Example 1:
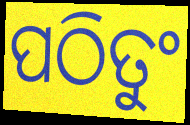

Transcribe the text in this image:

ପଠିତୁଂ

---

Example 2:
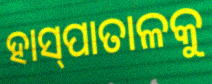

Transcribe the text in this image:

ହାସ୍‍ପାତାଳକୁ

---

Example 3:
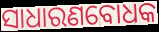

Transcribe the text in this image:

ସାଧାରଣବୋଧକ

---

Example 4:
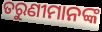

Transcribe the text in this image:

ତରୁଣୀମାନଙ୍କ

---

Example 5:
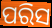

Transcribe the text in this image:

ପରିସ